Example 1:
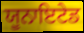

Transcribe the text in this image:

ਯੂਨਾਇਟੇਡ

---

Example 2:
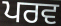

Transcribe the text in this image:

ਪਰਵ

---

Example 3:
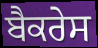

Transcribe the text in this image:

ਬੈਕਰੇਸ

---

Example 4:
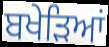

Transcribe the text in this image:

ਬਖੇੜਿਆਂ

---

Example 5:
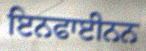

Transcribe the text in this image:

ਇਨਫਾਈਨਨ